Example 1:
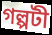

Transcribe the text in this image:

গল্পটী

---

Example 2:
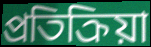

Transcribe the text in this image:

প্রতিক্রিয়া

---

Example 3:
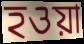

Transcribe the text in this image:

হওয়া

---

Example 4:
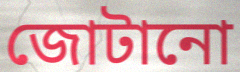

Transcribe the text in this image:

জোটানো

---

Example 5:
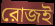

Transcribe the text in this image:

রোজই